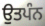
ਉਤਪੰਨ